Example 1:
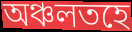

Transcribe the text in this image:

অঞ্চলতহে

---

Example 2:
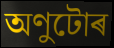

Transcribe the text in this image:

অণুটোৰ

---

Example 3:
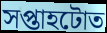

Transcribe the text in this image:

সপ্তাহটোত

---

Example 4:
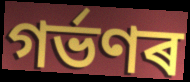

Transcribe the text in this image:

গৰ্ভণৰ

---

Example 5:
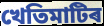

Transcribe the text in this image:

খেতিমাটিৰ